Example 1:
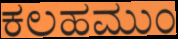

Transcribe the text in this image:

ಕಲಹಮುಂ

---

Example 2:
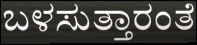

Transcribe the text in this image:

ಬಳಸುತ್ತಾರಂತೆ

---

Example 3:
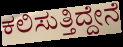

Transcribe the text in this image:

ಕಲಿಸುತ್ತಿದ್ದೇನೆ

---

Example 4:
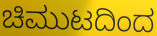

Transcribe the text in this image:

ಚಿಮುಟದಿಂದ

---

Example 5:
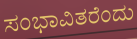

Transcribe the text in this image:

ಸಂಭಾವಿತರೆಂದು